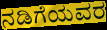
ನಡಿಗೆಯವರ